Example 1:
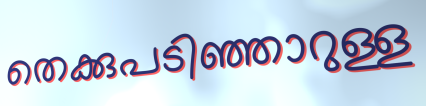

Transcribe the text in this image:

തെക്കുപടിഞ്ഞാറുള്ള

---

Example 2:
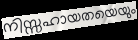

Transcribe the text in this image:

നിസ്സഹായതയെയും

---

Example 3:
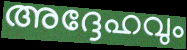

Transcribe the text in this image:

അദ്ദേഹവും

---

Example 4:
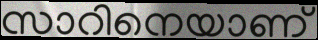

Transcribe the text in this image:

സാറിനെയാണ്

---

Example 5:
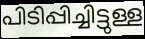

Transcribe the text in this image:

പിടിപ്പിച്ചിട്ടുള്ള